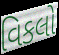
વિકલો